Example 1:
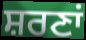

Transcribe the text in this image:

ਸ਼ਰਣਾਂ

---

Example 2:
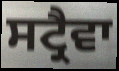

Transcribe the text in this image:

ਸਟ੍ਰੈਵਾ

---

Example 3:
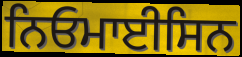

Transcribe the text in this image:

ਨਿਓਮਾਈਸਿਨ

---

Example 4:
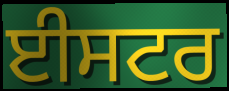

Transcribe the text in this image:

ਈਸਟਰ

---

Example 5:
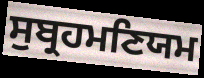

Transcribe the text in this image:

ਸੁਬ੍ਰਹਮਣਿਯਮ